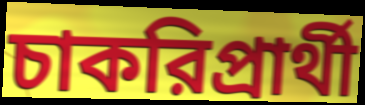
চাকরিপ্রার্থী